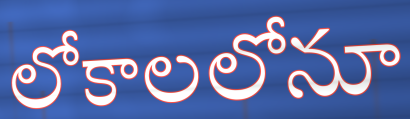
లోకాలలోనూ